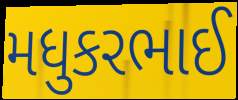
મધુકરભાઈ